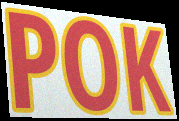
POK